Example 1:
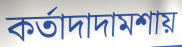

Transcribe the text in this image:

কর্তাদাদামশায়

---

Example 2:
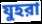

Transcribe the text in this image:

যুহরা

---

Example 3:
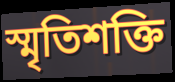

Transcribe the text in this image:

স্মৃতিশক্তি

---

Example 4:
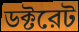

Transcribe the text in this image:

ডক্টরেট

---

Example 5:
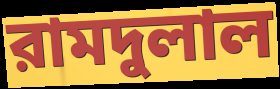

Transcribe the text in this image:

রামদুলাল